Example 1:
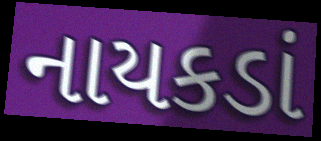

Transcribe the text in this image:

નાયકડાં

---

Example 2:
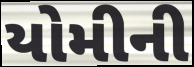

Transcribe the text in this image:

યોમીની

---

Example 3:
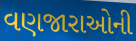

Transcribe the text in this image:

વણજારાઓની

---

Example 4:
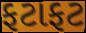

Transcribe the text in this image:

ફટાફટ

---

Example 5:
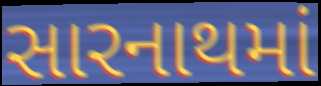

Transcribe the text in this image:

સારનાથમાં